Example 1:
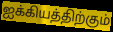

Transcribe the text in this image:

ஐக்கியத்திற்கும்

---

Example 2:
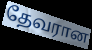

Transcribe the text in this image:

தேவரான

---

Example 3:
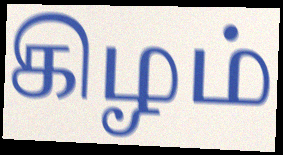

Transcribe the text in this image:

கிழம்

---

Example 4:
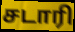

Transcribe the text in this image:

சடாரி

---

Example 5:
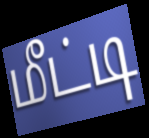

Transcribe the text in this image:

மீட்டி